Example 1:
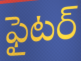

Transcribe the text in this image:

ఫైటర్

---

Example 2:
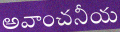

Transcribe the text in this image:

అవాంచనీయ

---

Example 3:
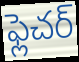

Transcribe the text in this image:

ఫ్లెచర్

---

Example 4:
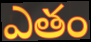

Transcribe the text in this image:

ఎతం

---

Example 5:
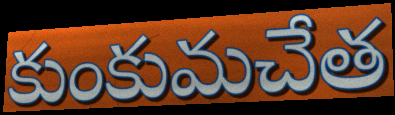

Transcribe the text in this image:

కుంకుమచేత